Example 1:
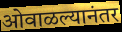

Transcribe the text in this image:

ओवाळल्यानंतर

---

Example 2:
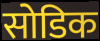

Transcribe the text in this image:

सोडिक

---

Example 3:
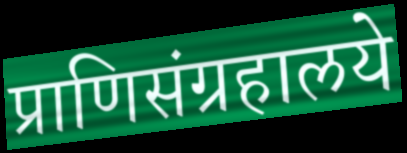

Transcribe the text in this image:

प्राणिसंग्रहालये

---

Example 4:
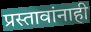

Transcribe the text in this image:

प्रस्तावांनाही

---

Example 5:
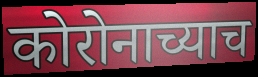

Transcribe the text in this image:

कोरोनाच्याच